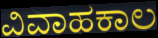
ವಿವಾಹಕಾಲ